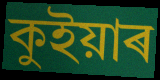
কুইয়াৰ